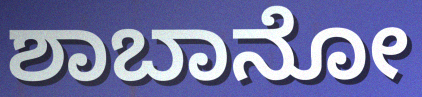
ಶಾಬಾನೋ